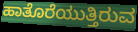
ಹಾತೊರೆಯುತ್ತಿರುವ